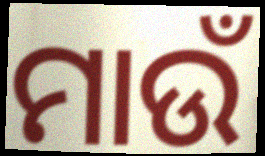
ମାଉଁ